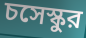
চসেস্কুর